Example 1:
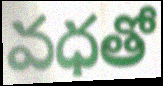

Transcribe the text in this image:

వధతో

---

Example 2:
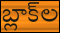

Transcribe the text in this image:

బ్లాక్‌ల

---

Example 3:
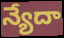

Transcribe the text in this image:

న్యేదా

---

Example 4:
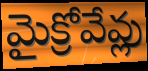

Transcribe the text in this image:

మైక్రోవేవ్లు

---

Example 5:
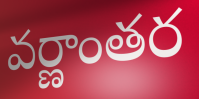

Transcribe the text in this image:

వర్ణాంతర